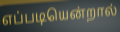
எப்படியென்றால்